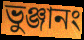
ভুঞ্জানং